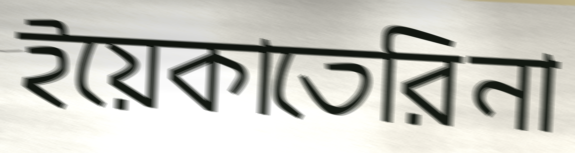
ইয়েকাতেরিনা